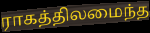
ராகத்திலமைந்த